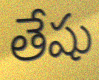
తేషు